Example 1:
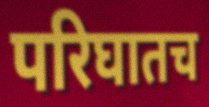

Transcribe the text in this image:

परिघातच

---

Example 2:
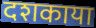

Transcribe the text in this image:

दशकाया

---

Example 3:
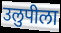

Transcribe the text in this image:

उलुपीला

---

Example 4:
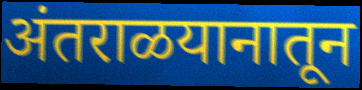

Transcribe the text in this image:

अंतराळयानातून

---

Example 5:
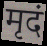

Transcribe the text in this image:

मृदं